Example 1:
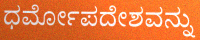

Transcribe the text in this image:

ಧರ್ಮೋಪದೇಶವನ್ನು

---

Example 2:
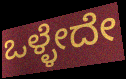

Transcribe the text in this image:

ಒಳ್ಳೇದೇ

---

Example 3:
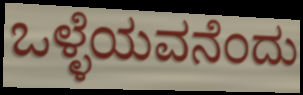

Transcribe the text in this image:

ಒಳ್ಳೆಯವನೆಂದು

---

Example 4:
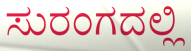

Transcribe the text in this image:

ಸುರಂಗದಲ್ಲಿ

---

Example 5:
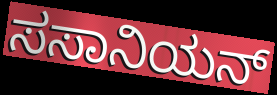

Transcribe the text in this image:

ಸಸಾನಿಯನ್